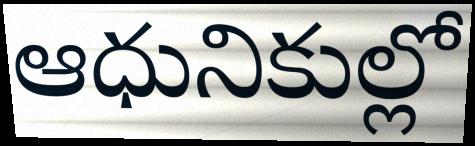
ఆధునికుల్లో